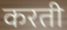
करती